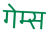
गेम्स